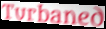
Turbaned